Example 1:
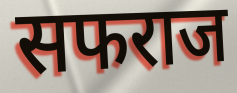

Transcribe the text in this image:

सफराज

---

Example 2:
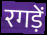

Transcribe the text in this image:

रगड़ें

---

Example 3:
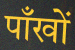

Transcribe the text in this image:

पाँखों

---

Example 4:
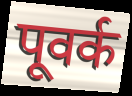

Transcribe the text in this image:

पूवर्क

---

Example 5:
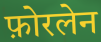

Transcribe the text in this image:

फ़ोरलेन